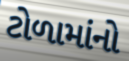
ટોળામાંનો